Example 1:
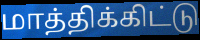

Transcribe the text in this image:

மாத்திக்கிட்டு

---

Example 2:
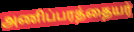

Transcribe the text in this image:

அணிப்பரத்தையர்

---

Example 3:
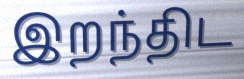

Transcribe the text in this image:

இறந்திட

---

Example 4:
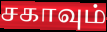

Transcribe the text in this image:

சகாவும்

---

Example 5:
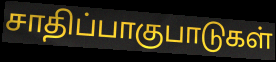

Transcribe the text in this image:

சாதிப்பாகுபாடுகள்